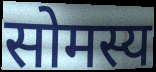
सोमस्य